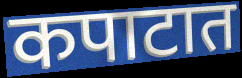
कपाटात